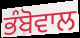
ਭੰਬੋਵਾਲ